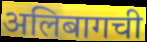
अलिबागची